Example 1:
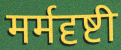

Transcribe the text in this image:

मर्मदृष्टी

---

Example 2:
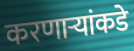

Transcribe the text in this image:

करणाऱ्यांकडे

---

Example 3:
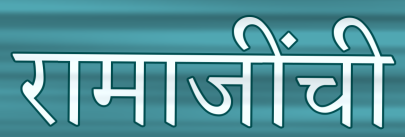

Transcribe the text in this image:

रामाजींची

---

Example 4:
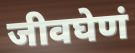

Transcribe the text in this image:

जीवघेणं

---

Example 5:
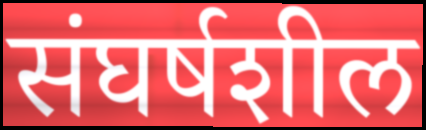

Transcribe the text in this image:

संघर्षशील